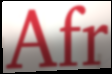
Afr